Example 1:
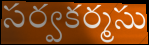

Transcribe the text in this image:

సర్వకర్మసు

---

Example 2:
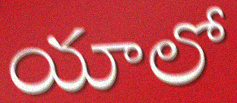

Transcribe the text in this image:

యాలో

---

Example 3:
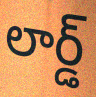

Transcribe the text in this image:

లార్డ్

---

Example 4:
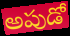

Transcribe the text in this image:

అపుడో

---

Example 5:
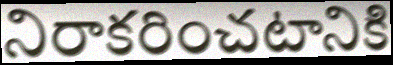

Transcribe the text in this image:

నిరాకరించటానికి